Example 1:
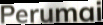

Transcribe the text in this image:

Perumai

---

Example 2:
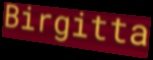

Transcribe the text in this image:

Birgitta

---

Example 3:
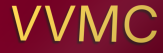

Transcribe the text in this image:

VVMC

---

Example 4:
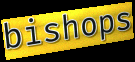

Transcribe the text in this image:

bishops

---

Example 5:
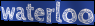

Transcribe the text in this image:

waterloo